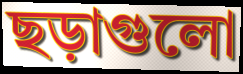
ছড়াগুলো